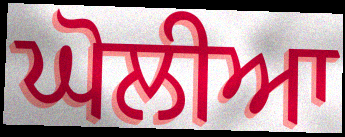
ਘੋਲੀਆ